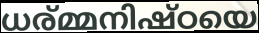
ധര്മ്മനിഷ്ഠയെ